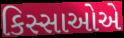
કિસ્સાઓએ